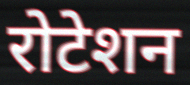
रोटेशन